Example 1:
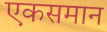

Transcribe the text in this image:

एकसमान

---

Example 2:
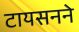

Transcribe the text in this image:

टायसनने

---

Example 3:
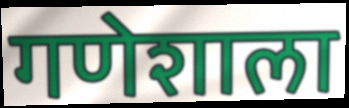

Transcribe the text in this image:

गणेशाला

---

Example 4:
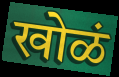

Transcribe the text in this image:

खोळं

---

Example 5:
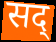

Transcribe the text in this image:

सद्